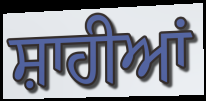
ਸ਼ਾਹੀਆਂ